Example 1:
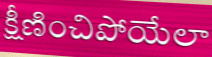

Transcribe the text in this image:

క్షీణించిపోయేలా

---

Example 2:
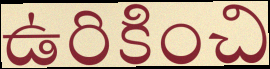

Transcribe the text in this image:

ఉరికించి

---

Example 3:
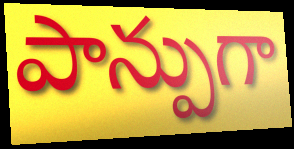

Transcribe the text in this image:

పాన్పుగా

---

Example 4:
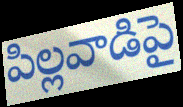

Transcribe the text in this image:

పిల్లవాడిపై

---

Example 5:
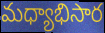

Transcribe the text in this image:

మధ్యాభిసార